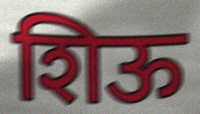
शिऊ